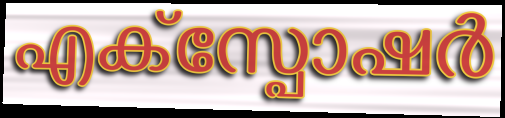
എക്സ്പോഷർ